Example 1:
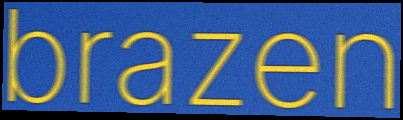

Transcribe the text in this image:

brazen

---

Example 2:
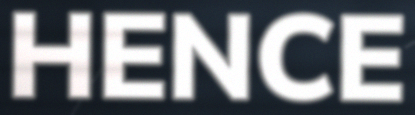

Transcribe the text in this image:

HENCE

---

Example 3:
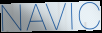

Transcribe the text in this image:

NAVIC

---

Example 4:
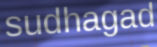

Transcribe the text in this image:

sudhagad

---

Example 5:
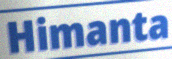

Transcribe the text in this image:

Himanta